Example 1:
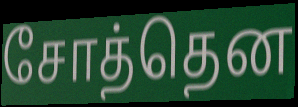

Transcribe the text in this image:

சோத்தென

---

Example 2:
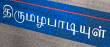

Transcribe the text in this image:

திருமழபாடியுள்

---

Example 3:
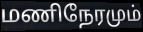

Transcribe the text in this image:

மணிநேரமும்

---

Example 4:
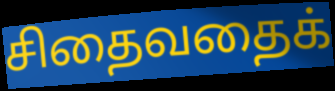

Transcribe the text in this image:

சிதைவதைக்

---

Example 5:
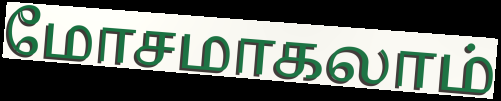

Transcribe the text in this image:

மோசமாகலாம்